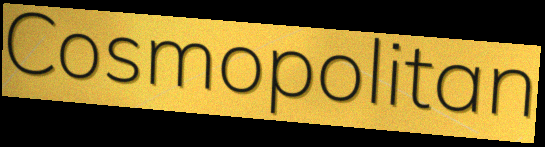
Cosmopolitan